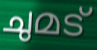
ചുമട്